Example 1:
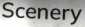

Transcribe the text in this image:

Scenery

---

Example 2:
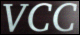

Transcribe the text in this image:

VCC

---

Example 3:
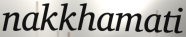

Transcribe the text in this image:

nakkhamati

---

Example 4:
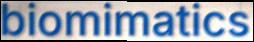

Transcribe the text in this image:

biomimatics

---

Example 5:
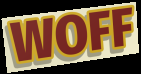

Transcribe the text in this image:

WOFF